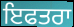
ਇਫਤਰਾ